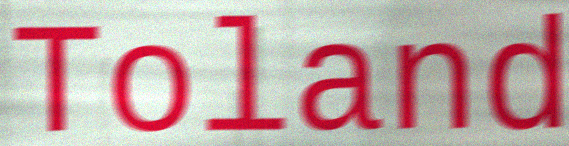
Toland